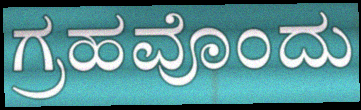
ಗ್ರಹವೊಂದು